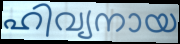
ഹിവ്യനായ